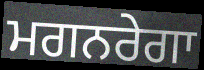
ਮਗਨਰੇਗਾ